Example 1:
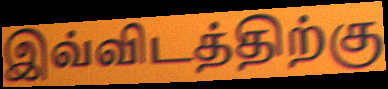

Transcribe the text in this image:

இவ்விடத்திற்கு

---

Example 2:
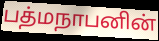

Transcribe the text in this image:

பத்மநாபனின்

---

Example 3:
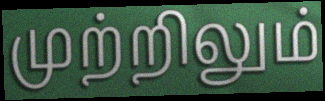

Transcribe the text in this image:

முற்றிலும்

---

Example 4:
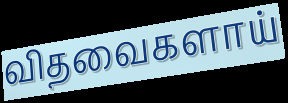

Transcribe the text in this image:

விதவைகளாய்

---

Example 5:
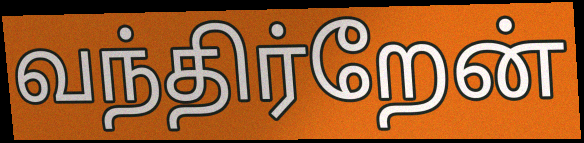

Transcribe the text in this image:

வந்திர்றேன்